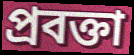
প্ৰবক্তা